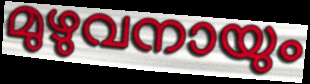
മുഴുവനായും